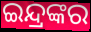
ଇନ୍ଦ୍ରଙ୍କର